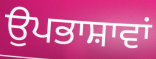
ਉਪਭਾਸ਼ਾਵਾਂ